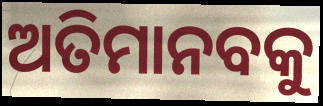
ଅତିମାନବକୁ